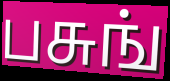
பசுங்